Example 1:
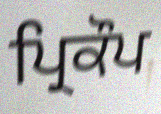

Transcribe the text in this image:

ਪ੍ਰਿਕੌਪ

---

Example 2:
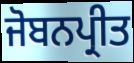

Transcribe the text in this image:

ਜੋਬਨਪ੍ਰੀਤ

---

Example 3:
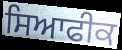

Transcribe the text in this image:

ਸਿਆਫੀਕ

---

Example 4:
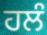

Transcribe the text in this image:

ਹਲੰ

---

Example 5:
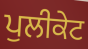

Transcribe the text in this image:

ਪੁਲੀਕੇਟ